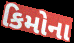
કિમોના